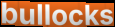
bullocks